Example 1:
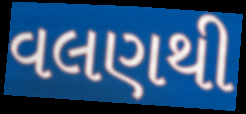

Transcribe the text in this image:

વલણથી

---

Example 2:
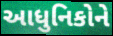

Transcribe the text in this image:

આધુનિકોને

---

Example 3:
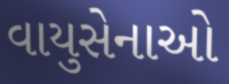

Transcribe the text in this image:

વાયુસેનાઓ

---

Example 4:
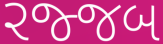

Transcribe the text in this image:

રજ્જબ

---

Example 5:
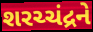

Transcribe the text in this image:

શરચ્ચંદ્રને